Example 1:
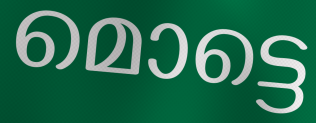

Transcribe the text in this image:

മൊട്ടെ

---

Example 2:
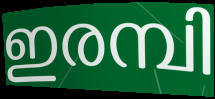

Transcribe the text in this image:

ഇരമ്പി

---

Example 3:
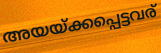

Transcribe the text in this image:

അയയ്ക്കപ്പെട്ടവര്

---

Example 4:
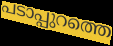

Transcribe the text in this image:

പടാപ്പുറത്തെ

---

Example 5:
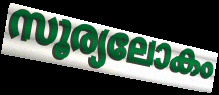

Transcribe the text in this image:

സൂര്യലോകം